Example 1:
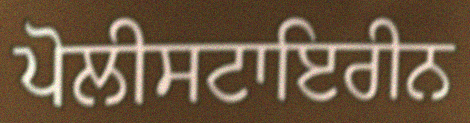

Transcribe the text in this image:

ਪੋਲੀਸਟਾਇਰੀਨ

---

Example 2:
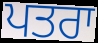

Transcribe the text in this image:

ਪਤਰਾ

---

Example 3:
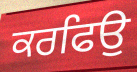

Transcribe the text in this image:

ਕਰਫਿਉ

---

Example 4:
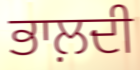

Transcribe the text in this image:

ਭਾਲ਼ਦੀ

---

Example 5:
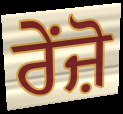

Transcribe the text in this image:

ਰੇਂਜ਼ੋ